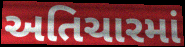
અતિચારમાં